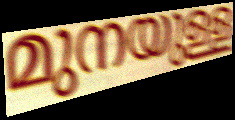
മുനയുള്ള